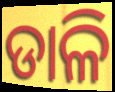
ଡାଳି